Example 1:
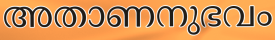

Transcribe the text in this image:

അതാണനുഭവം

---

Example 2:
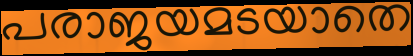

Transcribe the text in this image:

പരാജയമടയാതെ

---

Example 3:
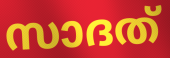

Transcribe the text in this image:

സാദത്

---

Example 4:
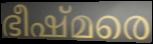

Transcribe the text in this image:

ഭീഷ്മരെ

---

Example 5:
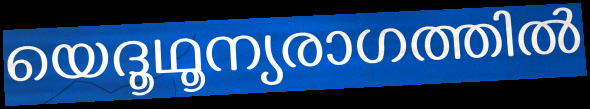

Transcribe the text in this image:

യെദൂഥൂന്യരാഗത്തിൽ